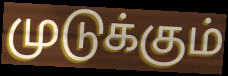
முடுக்கும்